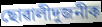
ছোৱালীদুজনীক